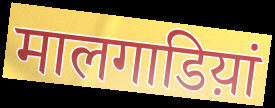
मालगाडिय़ां